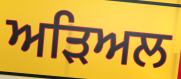
ਅੜਿਅਲ